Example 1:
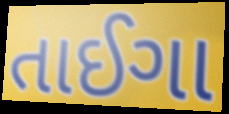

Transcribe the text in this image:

તાઈગા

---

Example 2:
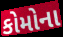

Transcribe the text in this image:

કોમોના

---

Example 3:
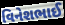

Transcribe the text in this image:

વિનેશભાઈ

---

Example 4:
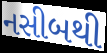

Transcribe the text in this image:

નસીબથી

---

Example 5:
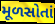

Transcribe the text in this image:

મૂળસોતાં